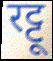
रट्टू